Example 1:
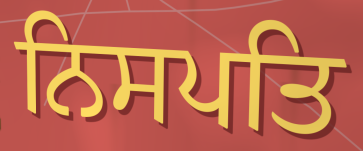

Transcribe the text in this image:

ਨਿਸਪਤਿ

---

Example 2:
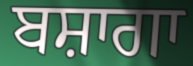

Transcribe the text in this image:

ਬਸ਼ਾਗਾ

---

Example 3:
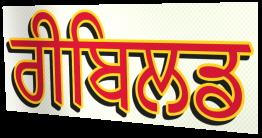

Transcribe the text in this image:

ਰੀਬਿਲਡ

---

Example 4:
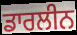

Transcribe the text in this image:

ਡਾਰਲੀਨ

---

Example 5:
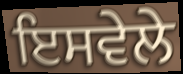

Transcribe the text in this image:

ਇਸਵੇਲੇ